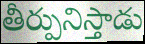
తీర్పునిస్తాడు